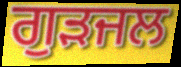
ਗੁੜਜਲ